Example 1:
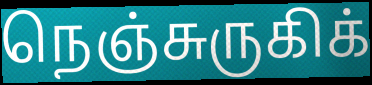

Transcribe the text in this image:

நெஞ்சுருகிக்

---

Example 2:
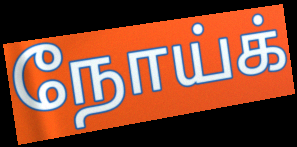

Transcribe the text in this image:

நோய்க்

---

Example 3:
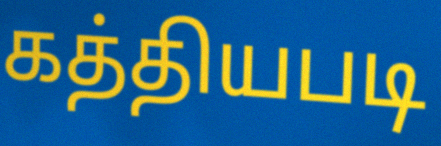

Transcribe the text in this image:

கத்தியபடி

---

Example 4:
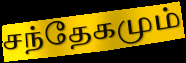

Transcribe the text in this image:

சந்தேகமும்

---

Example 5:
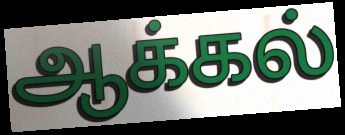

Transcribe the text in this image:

ஆக்கல்